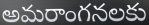
అమరాంగనలకు